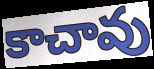
కాచావు